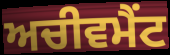
ਅਚੀਵਮੈਂਟ